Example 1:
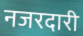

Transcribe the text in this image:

नजरदारी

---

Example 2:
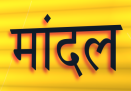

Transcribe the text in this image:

मांदल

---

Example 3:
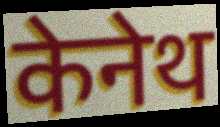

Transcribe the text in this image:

केनेथ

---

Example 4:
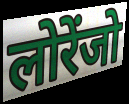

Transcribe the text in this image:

लोरेंजो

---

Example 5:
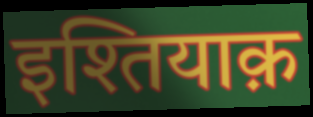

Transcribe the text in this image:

इश्तियाक़